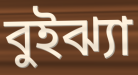
বুইঝ্যা